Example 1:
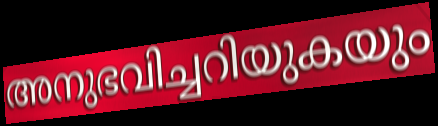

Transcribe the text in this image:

അനുഭവിച്ചറിയുകയും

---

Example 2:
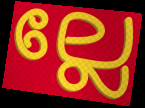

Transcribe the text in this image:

ല്ലേ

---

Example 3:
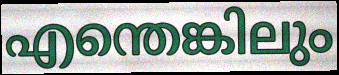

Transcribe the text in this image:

എന്തെങ്കിലും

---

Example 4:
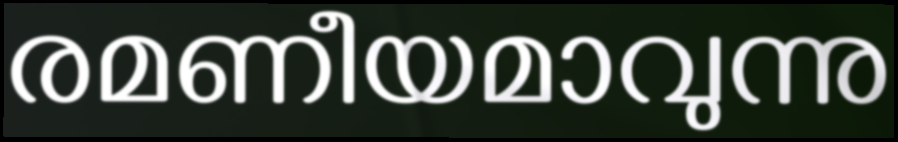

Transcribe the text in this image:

രമണീയമാവുന്നു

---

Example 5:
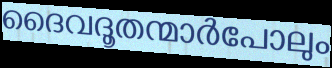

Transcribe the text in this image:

ദൈവദൂതന്മാർപോലും